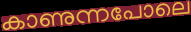
കാണുന്നപോലെ